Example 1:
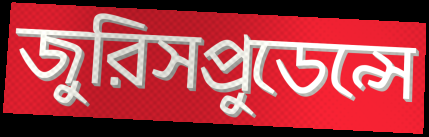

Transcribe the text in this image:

জুরিসপ্রুডেন্সে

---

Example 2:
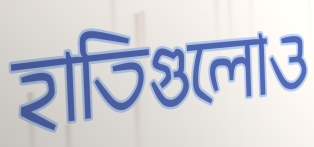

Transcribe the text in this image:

হাতিগুলোও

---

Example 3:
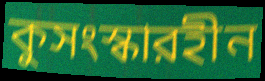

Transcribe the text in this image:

কুসংস্কারহীন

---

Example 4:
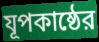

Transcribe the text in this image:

যূপকাষ্ঠের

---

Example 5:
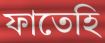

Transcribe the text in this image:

ফাতেহি